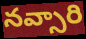
నవ్సారి